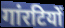
गांरटियों